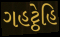
ગહટ્ઠેહિ